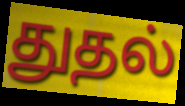
துதல்